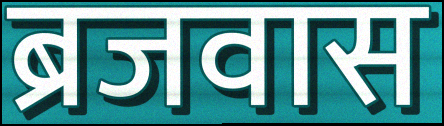
ब्रजवास